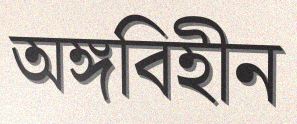
অঙ্গবিহীন